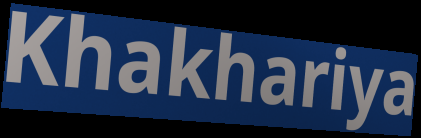
Khakhariya